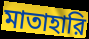
মাতাহারি